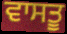
ਵਾਸਤੂ